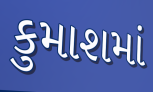
કુમાશમાં